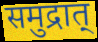
समुद्रात्